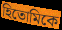
হিতোমিকে